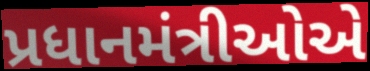
પ્રધાનમંત્રીઓએ